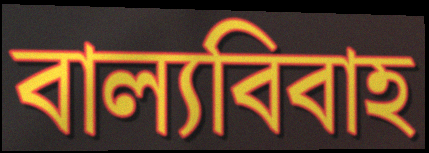
বাল্যবিবাহ